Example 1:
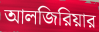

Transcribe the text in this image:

আলজিরিয়ার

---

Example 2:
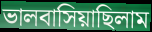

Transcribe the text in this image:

ভালবাসিয়াছিলাম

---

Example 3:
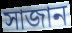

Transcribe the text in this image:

সাজান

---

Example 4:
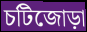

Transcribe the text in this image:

চটিজোড়া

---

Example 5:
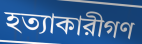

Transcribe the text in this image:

হত্যাকারীগণ